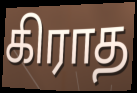
கிராத